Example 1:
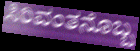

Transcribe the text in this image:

ಸಿರಿವಂತನೊಬ್ಬ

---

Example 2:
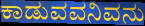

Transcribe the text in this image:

ಕಾಡುವವನಿವನು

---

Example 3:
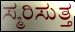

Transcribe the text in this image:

ಸ್ಮರಿಸುತ್ತ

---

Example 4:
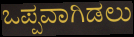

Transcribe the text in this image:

ಒಪ್ಪವಾಗಿಡಲು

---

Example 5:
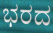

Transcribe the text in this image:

ಭರದ